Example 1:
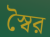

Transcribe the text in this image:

স্বৈর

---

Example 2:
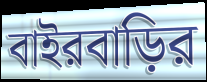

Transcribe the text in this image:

বাইরবাড়ির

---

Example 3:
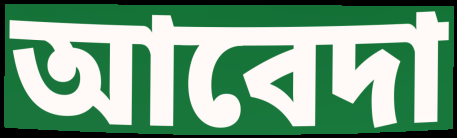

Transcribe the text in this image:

আবেদা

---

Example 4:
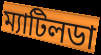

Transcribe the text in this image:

ম্যাটিলডা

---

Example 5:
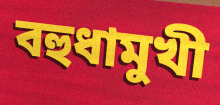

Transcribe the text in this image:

বহুধামুখী